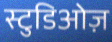
स्टुडिओज़